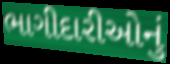
ભાગીદારીઓનું